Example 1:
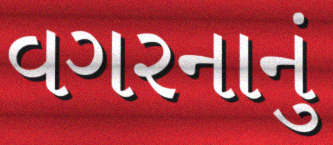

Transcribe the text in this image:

વગરનાનું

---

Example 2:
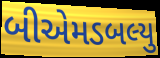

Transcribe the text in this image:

બીએમડબલ્યુ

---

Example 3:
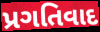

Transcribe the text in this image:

પ્રગતિવાદ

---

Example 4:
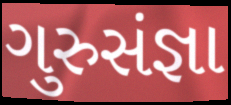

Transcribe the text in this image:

ગુરુસંજ્ઞા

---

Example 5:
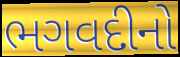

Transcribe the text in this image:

ભગવદીનો